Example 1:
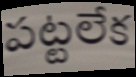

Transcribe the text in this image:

పట్టలేక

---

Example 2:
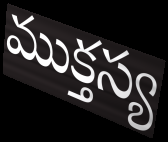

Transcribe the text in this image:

ముక్తస్య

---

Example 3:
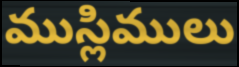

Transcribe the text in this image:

ముస్లిములు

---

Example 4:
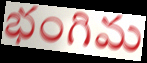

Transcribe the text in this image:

భంగిమ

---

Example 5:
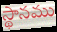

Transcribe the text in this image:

స్థానము